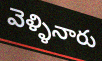
వెళ్ళినారు